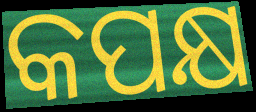
କପକ୍ଷ